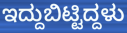
ಇದ್ದುಬಿಟ್ಟಿದ್ದಳು